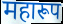
महारूप